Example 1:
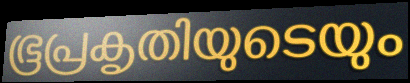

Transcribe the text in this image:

ഭൂപ്രകൃതിയുടെയും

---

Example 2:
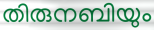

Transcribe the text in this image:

തിരുനബിയും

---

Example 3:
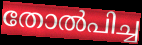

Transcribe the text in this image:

തോൽപിച്ച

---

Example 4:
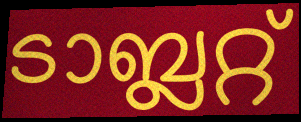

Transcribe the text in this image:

ടാബ്ലറ്റ്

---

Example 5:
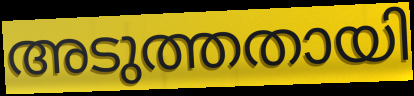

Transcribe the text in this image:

അടുത്തതായി